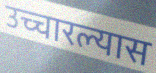
उच्चारल्यास